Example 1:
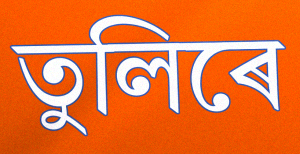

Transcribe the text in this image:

তুলিৰে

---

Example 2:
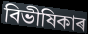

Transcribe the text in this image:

বিভীষিকাৰ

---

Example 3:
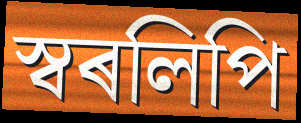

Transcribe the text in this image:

স্বৰলিপি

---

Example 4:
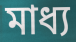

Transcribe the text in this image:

মাধ্য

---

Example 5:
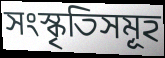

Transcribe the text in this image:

সংস্কৃতিসমূহ